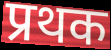
प्रथक